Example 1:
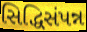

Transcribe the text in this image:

સિદ્ધિસંપન્ન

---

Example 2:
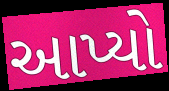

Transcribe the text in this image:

આપ્યો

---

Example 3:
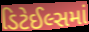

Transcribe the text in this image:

ડિટેઈલ્સમાં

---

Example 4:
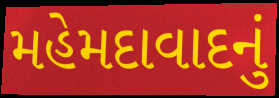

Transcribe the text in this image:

મહેમદાવાદનું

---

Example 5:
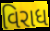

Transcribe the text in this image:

વિરાધ